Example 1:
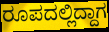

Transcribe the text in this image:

ರೂಪದಲ್ಲಿದ್ದಾಗ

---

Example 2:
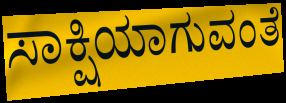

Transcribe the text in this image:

ಸಾಕ್ಷಿಯಾಗುವಂತೆ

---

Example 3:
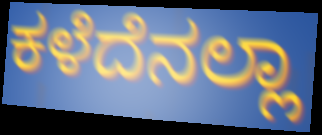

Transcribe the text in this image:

ಕಳೆದೆನಲ್ಲಾ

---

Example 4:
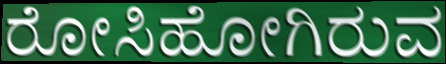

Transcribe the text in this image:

ರೋಸಿಹೋಗಿರುವ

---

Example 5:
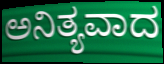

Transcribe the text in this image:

ಅನಿತ್ಯವಾದ